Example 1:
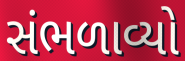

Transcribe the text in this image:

સંભળાવ્યો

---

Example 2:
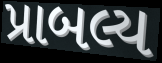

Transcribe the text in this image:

પ્રાબલ્ય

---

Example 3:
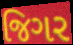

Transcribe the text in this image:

જિગર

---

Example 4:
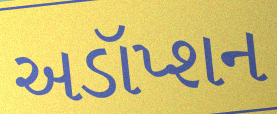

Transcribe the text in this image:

અડૉપ્શન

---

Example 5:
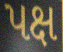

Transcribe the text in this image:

પક્ષ